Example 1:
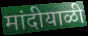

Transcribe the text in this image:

मांदीयाळी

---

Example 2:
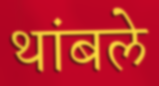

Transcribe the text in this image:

थांबले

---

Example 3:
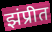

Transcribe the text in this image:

झंप्रीत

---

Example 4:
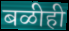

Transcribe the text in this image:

बळीही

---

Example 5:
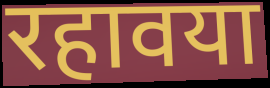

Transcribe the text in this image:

रहावया